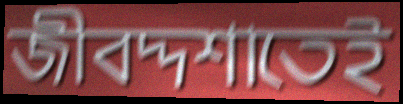
জীবদ্দশাতেই